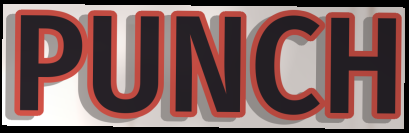
PUNCH